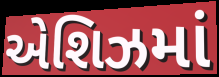
એશિઝમાં